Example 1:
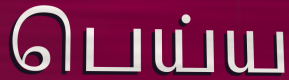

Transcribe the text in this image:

பெய்ய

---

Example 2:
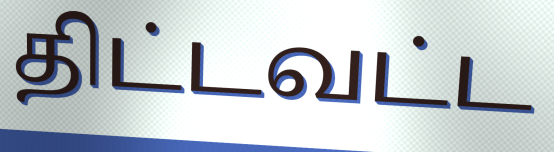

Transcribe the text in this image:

திட்டவட்ட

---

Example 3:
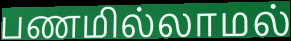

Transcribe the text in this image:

பணமில்லாமல்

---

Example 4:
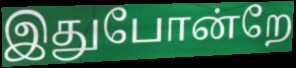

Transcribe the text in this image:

இதுபோன்றே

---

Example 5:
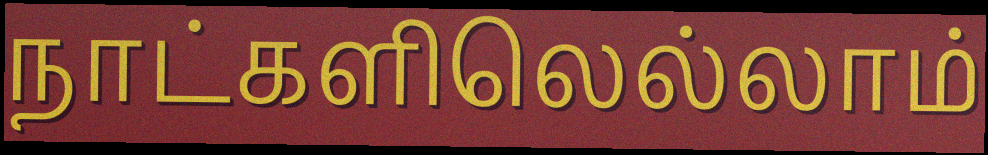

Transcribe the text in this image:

நாட்களிலெல்லாம்